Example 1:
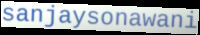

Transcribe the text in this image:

sanjaysonawani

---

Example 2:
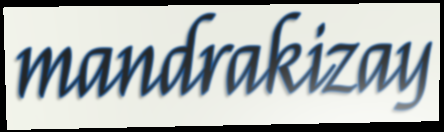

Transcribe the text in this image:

mandrakizay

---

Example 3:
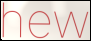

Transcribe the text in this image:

hew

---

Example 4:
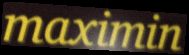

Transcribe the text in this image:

maximin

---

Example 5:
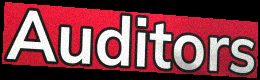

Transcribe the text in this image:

Auditors